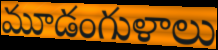
మూడంగుళాలు